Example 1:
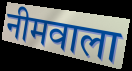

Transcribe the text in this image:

नीमवाला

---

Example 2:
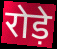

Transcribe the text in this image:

रोड़े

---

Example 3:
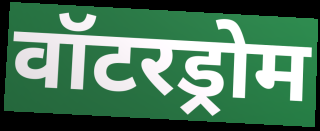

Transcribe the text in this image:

वॉटरड्रोम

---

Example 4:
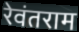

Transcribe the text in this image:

रेवंतराम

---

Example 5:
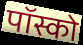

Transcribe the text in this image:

पॉस्को